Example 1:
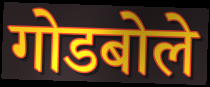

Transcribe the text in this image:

गोडबोले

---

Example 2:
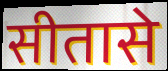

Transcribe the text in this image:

सीतासे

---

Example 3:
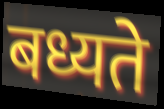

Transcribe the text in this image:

बध्यते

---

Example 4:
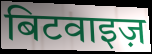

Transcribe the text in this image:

बिटवाइज़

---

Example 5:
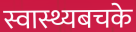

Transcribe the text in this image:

स्वास्थ्यबचके